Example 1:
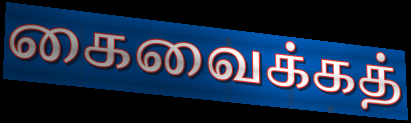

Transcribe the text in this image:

கைவைக்கத்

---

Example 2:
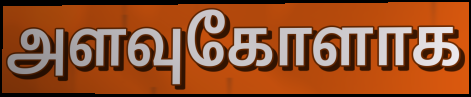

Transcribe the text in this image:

அளவுகோளாக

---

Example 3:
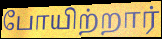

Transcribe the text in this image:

போயிற்றார்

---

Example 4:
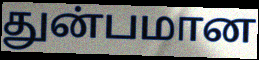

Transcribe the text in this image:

துன்பமான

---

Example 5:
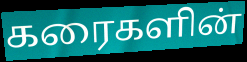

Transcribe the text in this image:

கரைகளின்